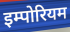
इम्पोरियम